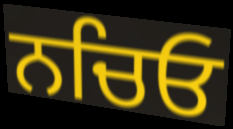
ਨਚਿਓ